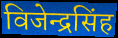
विजेन्द्रसिंह